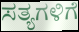
ಸತ್ಯಗಳಿಗೆ